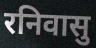
रनिवासु